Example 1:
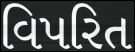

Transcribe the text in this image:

વિપરિત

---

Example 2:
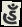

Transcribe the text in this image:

હઁ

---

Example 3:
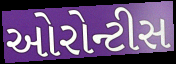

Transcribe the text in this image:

ઓરોન્ટીસ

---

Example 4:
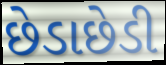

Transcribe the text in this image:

છેડાછેડી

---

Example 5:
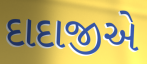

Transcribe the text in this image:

દાદાજીએ